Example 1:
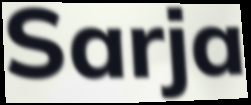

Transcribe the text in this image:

Sarja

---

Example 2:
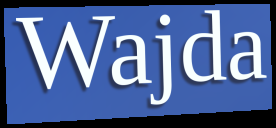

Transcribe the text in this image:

Wajda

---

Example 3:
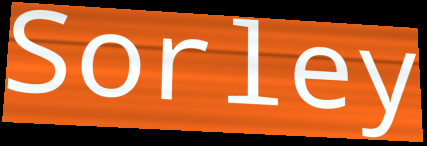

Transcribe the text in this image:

Sorley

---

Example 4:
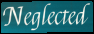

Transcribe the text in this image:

Neglected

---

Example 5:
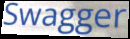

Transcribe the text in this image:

Swagger